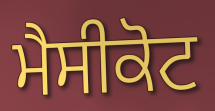
ਮੈਸੀਕੋਟ